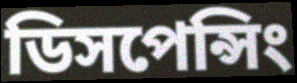
ডিসপেন্সিং